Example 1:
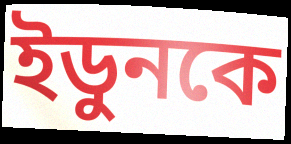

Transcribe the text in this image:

ইডুনকে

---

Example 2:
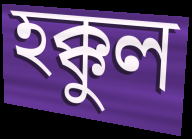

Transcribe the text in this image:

হক্কুল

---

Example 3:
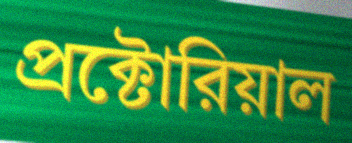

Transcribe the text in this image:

প্রক্টোরিয়াল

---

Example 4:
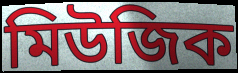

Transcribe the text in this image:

মিউজিক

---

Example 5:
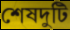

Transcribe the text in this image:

শেষদুটি